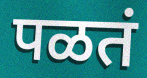
पळतं